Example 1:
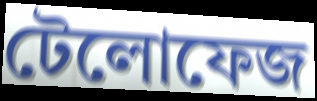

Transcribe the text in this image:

টেলোফেজ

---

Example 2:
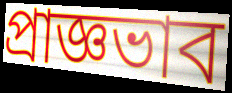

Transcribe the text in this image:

প্রাজ্ঞভাব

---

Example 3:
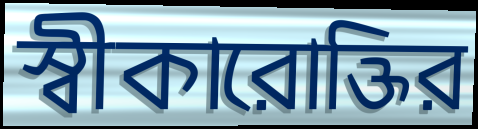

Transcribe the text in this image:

স্বীকারোক্তির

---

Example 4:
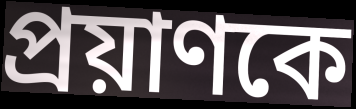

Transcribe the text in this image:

প্রয়াণকে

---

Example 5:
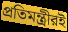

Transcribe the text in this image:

প্রতিমন্ত্রীরই